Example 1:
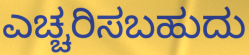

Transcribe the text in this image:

ಎಚ್ಚರಿಸಬಹುದು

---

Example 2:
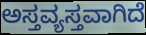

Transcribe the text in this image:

ಅಸ್ತವ್ಯಸ್ತವಾಗಿದೆ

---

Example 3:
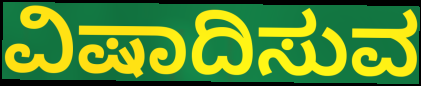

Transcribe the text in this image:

ವಿಷಾದಿಸುವ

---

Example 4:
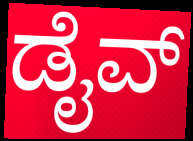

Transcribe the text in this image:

ಡೈವ್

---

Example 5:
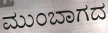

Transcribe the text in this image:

ಮುಂಬಾಗದ